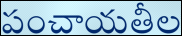
పంచాయతీల